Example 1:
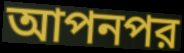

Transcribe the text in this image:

আপনপর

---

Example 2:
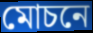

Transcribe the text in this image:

মোচনে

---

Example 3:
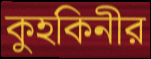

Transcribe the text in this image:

কুহকিনীর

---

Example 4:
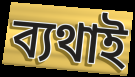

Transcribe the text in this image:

ব্যথাই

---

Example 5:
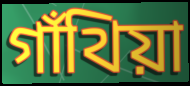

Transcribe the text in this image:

গাঁথিয়া